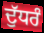
ਦੁੱਧਰੰ